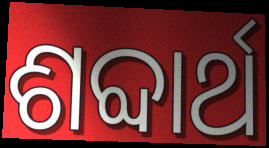
ଶବ୍ଦାର୍ଥ